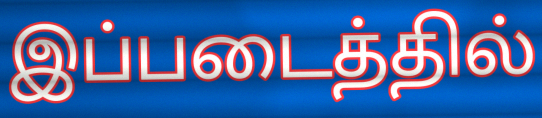
இப்படைத்தில்